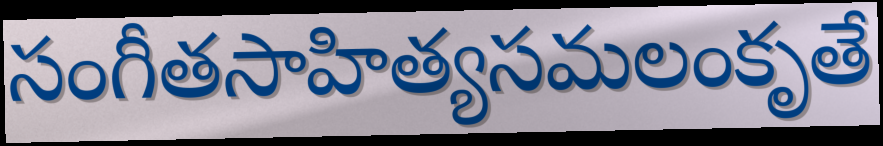
సంగీతసాహిత్యసమలంకృతే